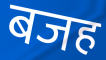
बजह